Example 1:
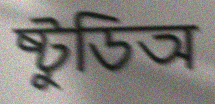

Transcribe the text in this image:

ষ্টুডিঅ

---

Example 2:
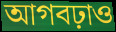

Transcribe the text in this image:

আগবঢ়াও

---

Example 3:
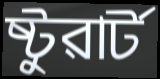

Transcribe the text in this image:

ষ্টুৱাৰ্ট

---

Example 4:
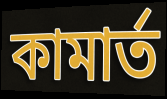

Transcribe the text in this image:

কামাৰ্ত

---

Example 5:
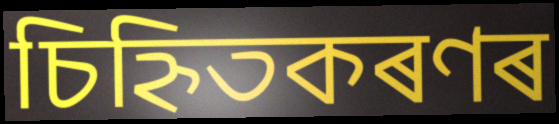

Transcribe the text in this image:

চিহ্নিতকৰণৰ